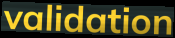
validation